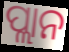
ପ୍ଲାନ